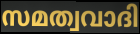
സമത്വവാദി